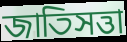
জাতিসত্তা